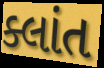
ક્લાંત